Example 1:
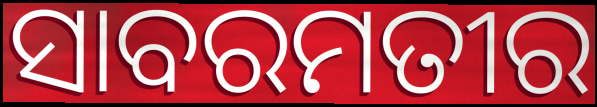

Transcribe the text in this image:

ସାବରମତୀର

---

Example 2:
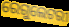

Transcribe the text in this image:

ରେଗୁଲେଟରୀ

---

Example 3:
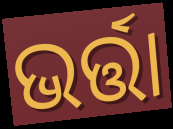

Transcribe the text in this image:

ଭର୍ତ୍ତା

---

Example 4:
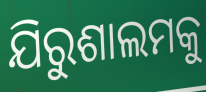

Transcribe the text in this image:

ଯିରୁଶାଲମକୁ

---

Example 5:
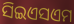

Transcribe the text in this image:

ସିଇଏସଏମ